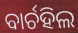
ବାର୍ଚହିଲ